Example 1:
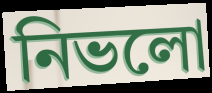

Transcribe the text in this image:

নিভলো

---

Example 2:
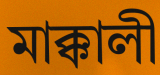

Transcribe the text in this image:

মাক্কালী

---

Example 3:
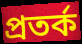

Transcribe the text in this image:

প্রতর্ক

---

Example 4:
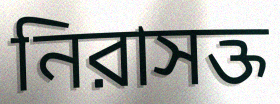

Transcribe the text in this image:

নিরাসক্ত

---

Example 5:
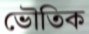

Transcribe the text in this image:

ভৌতিক